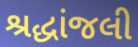
શ્રદ્ધાંજલી